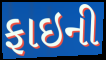
ફાઇની